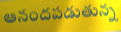
ఆనందపడుతున్న